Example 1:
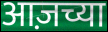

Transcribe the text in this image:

आज़च्या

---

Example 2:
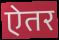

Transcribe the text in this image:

ऐतर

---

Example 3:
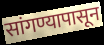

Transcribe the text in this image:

सांगण्यापासून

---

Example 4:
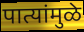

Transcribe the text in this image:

पात्यांमुळे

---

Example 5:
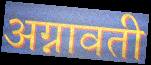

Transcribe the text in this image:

अग्नावती